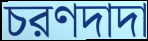
চরণদাদা